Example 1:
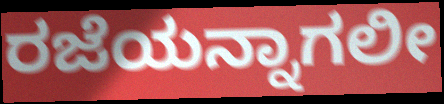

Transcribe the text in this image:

ರಜೆಯನ್ನಾಗಲೀ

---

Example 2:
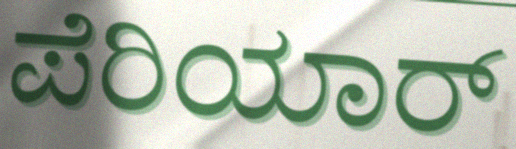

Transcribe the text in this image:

ಪೆರಿಯಾರ್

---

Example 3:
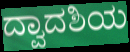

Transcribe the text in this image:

ದ್ವಾದಶಿಯ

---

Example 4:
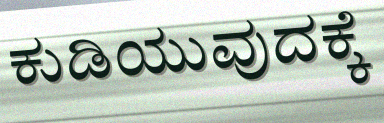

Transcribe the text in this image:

ಕುಡಿಯುವುದಕ್ಕೆ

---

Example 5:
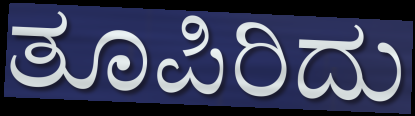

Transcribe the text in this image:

ತೂಪಿರಿದು